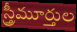
స్త్రీమూర్తుల